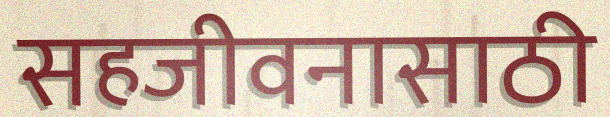
सहजीवनासाठी